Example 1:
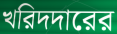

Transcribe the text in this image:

খরিদদারের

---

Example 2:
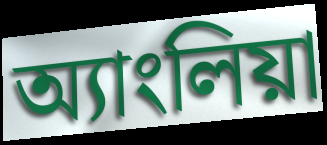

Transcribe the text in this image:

অ্যাংলিয়া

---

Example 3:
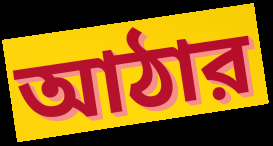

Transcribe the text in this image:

আঠার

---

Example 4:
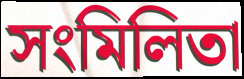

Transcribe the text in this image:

সংমিলিতা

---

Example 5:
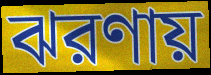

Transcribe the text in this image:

ঝরণায়